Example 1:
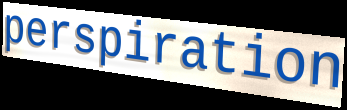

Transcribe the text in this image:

perspiration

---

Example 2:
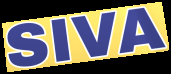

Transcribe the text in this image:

SIVA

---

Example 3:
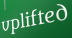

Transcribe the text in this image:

uplifted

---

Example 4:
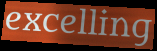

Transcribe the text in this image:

excelling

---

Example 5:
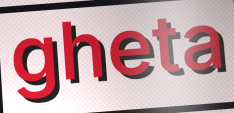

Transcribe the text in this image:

gheta